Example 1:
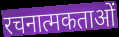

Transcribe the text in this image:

रचनात्मकताओं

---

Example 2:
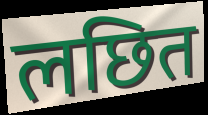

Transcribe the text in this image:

लछित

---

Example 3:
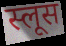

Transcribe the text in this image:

स्लूस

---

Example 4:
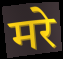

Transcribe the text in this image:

मरे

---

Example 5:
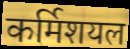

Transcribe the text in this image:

कर्मिशयल